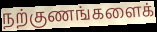
நற்குணங்களைக்